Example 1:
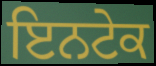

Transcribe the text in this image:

ਇਨਟੇਕ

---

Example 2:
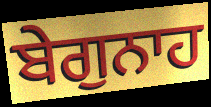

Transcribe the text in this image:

ਬੇਗੁਨਾਹ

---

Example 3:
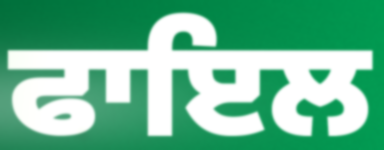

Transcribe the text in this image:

ਫਾਇਲ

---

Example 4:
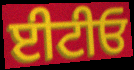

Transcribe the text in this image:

ਈਟੀਓ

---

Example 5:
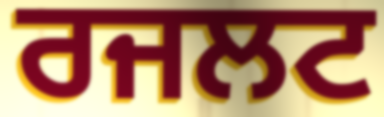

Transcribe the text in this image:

ਰਜਲਟ